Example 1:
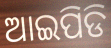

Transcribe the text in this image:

ଆଇପିଡି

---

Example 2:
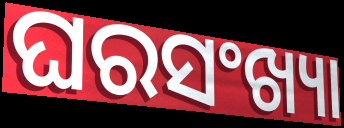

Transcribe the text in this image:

ଘରସଂଖ୍ୟା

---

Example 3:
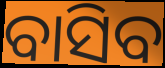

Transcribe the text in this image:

ବାସିବ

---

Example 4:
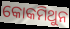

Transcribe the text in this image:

କୋକମିଥୁନ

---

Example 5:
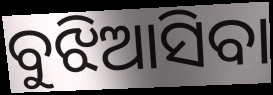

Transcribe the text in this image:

ବୁଝିଆସିବା